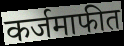
कर्जमाफीत